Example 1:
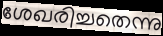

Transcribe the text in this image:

ശേഖരിച്ചതെന്നു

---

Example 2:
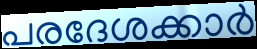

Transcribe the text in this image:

പരദേശക്കാർ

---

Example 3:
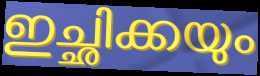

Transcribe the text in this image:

ഇച്ഛിക്കയും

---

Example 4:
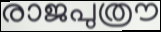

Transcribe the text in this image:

രാജപുത്രൗ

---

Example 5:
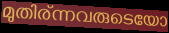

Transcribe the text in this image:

മുതിര്ന്നവരുടെയോ